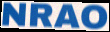
NRAO